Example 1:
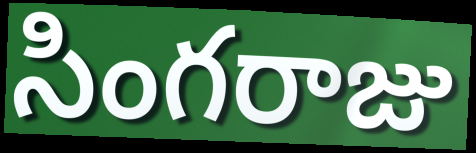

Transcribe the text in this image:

సింగరాజు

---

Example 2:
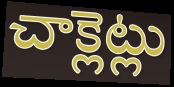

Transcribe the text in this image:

చాక్లెట్లు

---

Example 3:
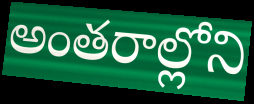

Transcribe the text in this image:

అంతరాల్లోని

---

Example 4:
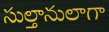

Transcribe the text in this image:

సుల్తానులాగా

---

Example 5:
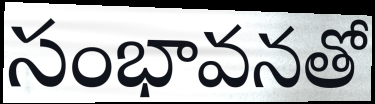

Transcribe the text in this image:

సంభావనతో